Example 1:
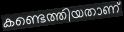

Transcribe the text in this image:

കണ്ടെത്തിയതാണ്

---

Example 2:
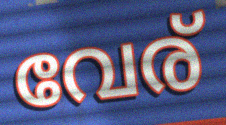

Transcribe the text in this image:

വേര്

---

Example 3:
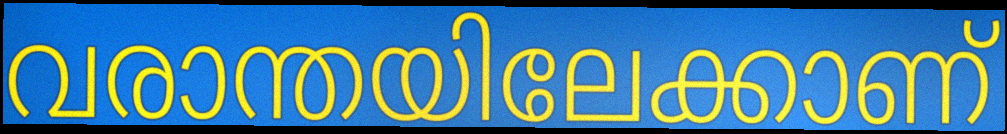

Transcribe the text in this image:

വരാന്തയിലേക്കാണ്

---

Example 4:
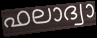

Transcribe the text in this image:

ഫലാദ്വാ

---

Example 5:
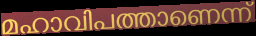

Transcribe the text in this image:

മഹാവിപത്താണെന്ന്